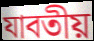
যাবতীয়